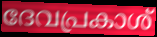
ദേവപ്രകാശ്